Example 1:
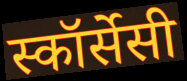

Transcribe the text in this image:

स्कॉर्सेसी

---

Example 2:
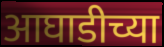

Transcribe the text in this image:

आघाडीच्या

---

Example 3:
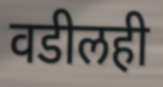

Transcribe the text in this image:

वडीलही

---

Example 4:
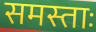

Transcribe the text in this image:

समस्ताः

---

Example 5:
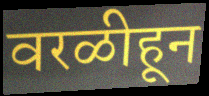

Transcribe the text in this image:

वरळीहून